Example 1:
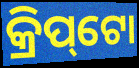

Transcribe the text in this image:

କ୍ରିପ୍‌ଟୋ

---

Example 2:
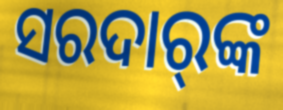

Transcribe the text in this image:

ସରଦାର୍‍ଙ୍କ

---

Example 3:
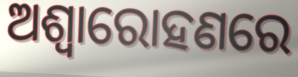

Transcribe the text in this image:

ଅଶ୍ଵାରୋହଣରେ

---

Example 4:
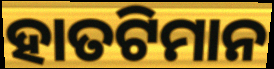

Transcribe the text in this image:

ହାତଟିମାନ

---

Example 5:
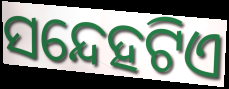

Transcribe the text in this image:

ସନ୍ଦେହଟିଏ